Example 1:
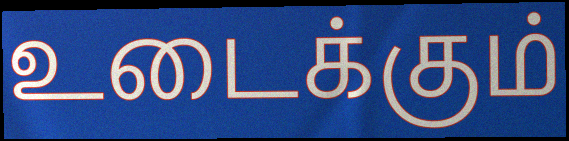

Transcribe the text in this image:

உடைக்கும்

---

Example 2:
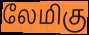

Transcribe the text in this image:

லேமிகு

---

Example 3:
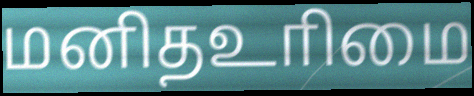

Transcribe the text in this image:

மனிதஉரிமை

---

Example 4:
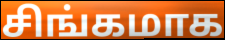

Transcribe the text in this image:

சிங்கமாக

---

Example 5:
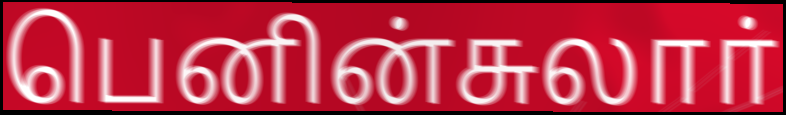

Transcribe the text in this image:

பெனின்சுலார்